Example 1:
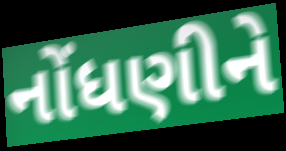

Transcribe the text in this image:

નોંધણીને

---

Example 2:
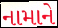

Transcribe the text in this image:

નામાને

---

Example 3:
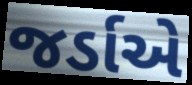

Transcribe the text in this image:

જર્ડાએ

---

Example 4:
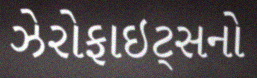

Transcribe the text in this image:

ઝેરોફાઇટ્સનો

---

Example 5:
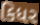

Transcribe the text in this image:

કિધર